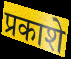
प्रकाशे